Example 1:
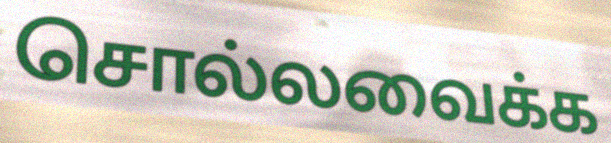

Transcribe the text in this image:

சொல்லவைக்க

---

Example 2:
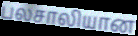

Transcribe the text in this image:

பலசாலியான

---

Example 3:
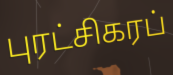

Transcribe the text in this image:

புரட்சிகரப்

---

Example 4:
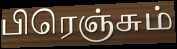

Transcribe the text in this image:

பிரெஞ்சும்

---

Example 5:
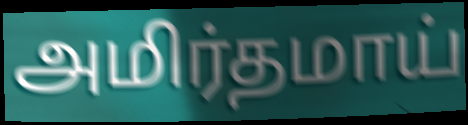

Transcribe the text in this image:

அமிர்தமாய்